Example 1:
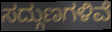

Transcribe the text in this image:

ಸದ್ಗುಣಗಳಿವೆ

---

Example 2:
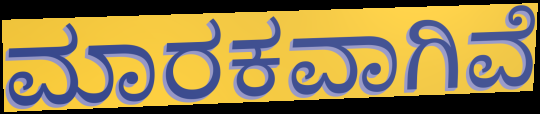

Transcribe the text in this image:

ಮಾರಕವಾಗಿವೆ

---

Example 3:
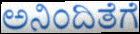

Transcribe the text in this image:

ಅನಿಂದಿತೆಗೆ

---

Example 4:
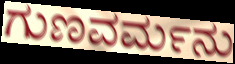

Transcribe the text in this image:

ಗುಣವರ್ಮನು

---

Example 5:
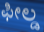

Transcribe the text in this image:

ಫೀಲ್ಡ